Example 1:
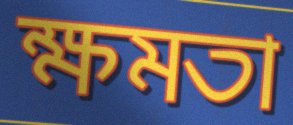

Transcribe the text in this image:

ক্ষমতা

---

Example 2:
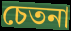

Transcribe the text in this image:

চেতনা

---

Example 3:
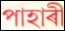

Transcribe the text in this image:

পাহাৰী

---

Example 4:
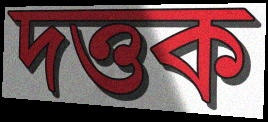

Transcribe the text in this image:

দত্তক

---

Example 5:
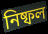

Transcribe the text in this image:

নিষ্ফল